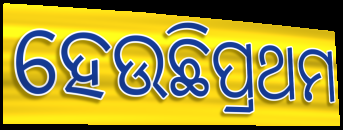
ହେଉଛିପ୍ରଥମ